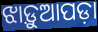
ଝାଡ଼ୁଆପଡ଼ା